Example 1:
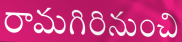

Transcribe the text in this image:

రామగిరినుంచి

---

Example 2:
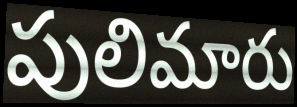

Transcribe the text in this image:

పులిమారు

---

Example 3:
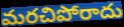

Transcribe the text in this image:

మరచిపోరాదు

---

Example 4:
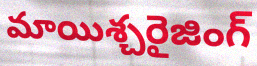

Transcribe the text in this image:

మాయిశ్చరైజింగ్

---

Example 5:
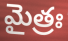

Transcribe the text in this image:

మైత్రః